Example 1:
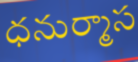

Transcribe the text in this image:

ధనుర్మాస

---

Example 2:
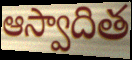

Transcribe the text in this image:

ఆస్వాదిత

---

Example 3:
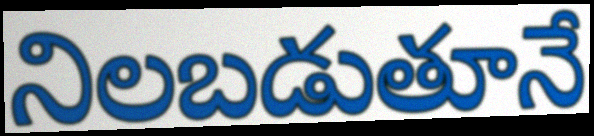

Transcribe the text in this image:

నిలబడుతూనే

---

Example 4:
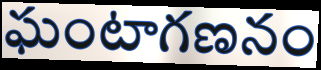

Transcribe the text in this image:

ఘంటాగణనం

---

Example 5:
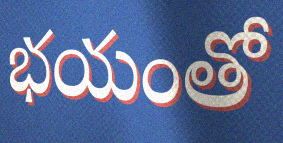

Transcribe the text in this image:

భయంతో